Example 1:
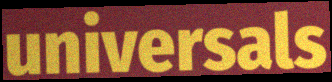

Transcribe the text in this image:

universals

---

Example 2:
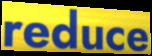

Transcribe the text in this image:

reduce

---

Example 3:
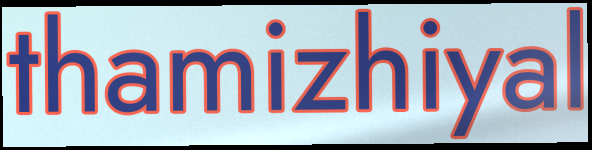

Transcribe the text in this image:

thamizhiyal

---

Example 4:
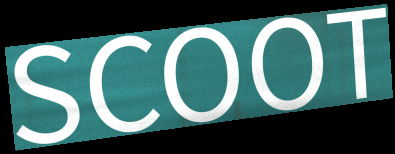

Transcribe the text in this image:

SCOOT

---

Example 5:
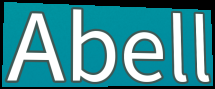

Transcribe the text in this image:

Abell